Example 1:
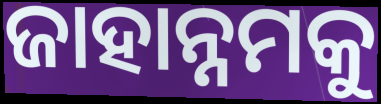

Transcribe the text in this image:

ଜାହାନ୍ନମକୁ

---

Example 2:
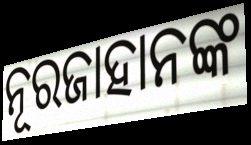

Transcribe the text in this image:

ନୂରଜାହାନଙ୍କ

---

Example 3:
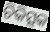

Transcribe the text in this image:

ଚିକିତ୍ସକ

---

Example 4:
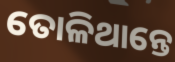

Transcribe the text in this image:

ତୋଳିଥାନ୍ତେ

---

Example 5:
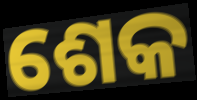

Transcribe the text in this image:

ଶେକ